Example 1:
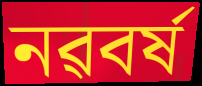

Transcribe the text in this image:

নৱবৰ্ষ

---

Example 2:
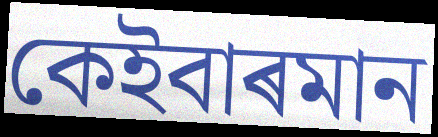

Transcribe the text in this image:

কেইবাৰমান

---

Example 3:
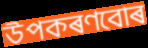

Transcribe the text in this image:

উপকৰণবোৰ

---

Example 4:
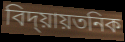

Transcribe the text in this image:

বিদ্য়ায়তনিক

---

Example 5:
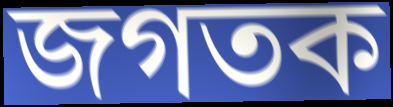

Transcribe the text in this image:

জগতক